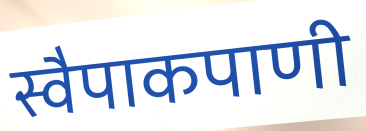
स्वैपाकपाणी